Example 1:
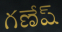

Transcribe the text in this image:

గణేష్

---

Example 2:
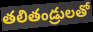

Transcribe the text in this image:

తలితండ్రులతో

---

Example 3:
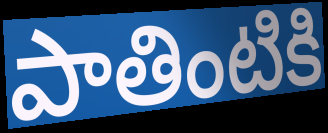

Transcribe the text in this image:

పాతింటికి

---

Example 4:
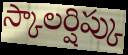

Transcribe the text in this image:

స్కాలర్షిప్కు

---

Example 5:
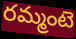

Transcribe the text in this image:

రమ్మంటె